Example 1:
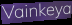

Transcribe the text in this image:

Vainkeya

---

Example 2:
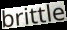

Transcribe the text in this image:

brittle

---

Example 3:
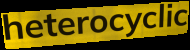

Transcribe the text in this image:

heterocyclic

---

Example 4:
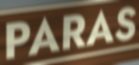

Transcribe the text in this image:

PARAS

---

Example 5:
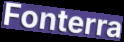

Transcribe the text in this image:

Fonterra